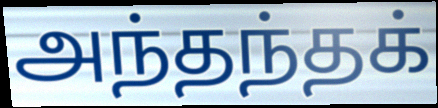
அந்தந்தக்